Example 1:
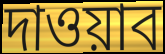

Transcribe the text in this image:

দাওয়াব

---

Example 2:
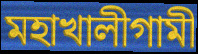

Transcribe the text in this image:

মহাখালীগামী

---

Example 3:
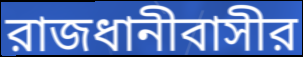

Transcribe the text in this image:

রাজধানীবাসীর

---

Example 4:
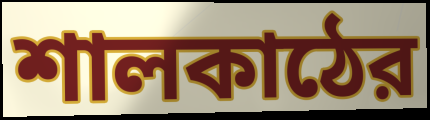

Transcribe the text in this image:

শালকাঠের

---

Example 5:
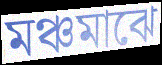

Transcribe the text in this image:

মঞ্চমাঝে